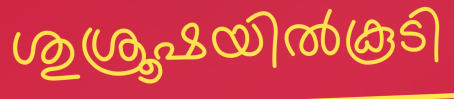
ശുശ്രൂഷയിൽകൂടി